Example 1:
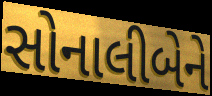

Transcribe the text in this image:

સોનાલીબેને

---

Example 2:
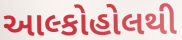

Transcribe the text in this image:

આલ્કોહોલથી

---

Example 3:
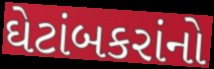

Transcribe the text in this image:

ઘેટાંબકરાંનો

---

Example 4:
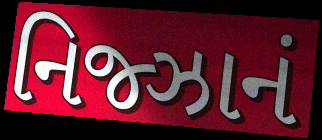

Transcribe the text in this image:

નિજ્ઝાનં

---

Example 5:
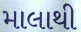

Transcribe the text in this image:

માલાથી